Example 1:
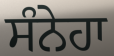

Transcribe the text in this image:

ਸੰਨੇਹਾ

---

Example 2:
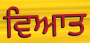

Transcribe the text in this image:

ਵਿਆਤ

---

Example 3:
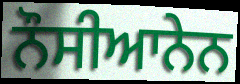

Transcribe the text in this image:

ਨੌਸੀਆਨੇਨ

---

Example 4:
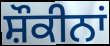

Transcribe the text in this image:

ਸ਼ੌਕੀਨਾਂ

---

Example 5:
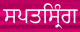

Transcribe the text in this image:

ਸਪਤਸ੍ਰਿੰਗ